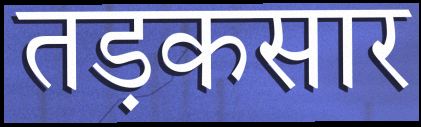
तड़कसार